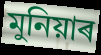
মুনিয়াৰ